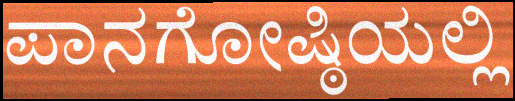
ಪಾನಗೋಷ್ಠಿಯಲ್ಲಿ